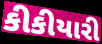
કીકીયારી